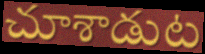
చూశాడుట